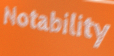
Notability